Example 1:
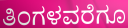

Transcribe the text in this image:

ತಿಂಗಳವರೆಗೂ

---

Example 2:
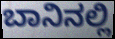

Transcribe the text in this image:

ಬಾನಿನಲ್ಲಿ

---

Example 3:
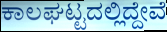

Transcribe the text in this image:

ಕಾಲಘಟ್ಟದಲ್ಲಿದ್ದೇವೆ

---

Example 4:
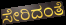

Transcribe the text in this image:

ಸೇರಿದಂತೆ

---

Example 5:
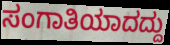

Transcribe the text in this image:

ಸಂಗಾತಿಯಾದದ್ದು